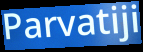
Parvatiji